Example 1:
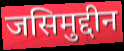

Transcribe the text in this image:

जसिमुद्दीन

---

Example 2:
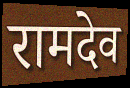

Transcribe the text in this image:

रामदेव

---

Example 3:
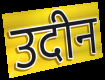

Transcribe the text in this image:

उदीन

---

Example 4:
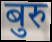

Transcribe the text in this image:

बुरु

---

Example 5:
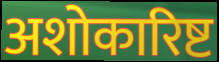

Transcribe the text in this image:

अशोकारिष्ट